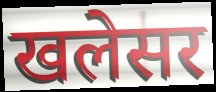
खलेसर